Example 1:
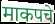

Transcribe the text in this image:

माकपचे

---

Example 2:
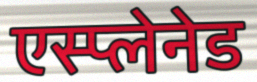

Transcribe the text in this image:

एस्प्लेनेड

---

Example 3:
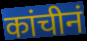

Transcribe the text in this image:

कांचीनं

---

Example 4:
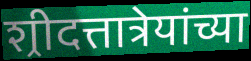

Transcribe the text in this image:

श्रीदत्तात्रेयांच्या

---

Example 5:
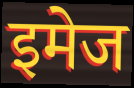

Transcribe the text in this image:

इमेज